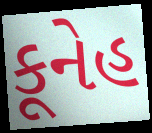
કૂનેહ